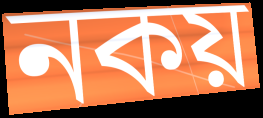
নকয়